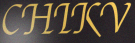
CHIKV